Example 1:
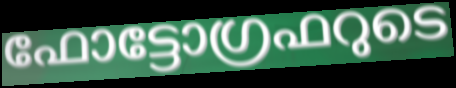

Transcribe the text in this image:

ഫോട്ടോഗ്രഫറുടെ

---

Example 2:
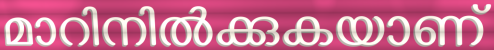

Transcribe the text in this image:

മാറിനിൽക്കുകയാണ്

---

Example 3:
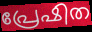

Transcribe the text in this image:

പ്രേഷിത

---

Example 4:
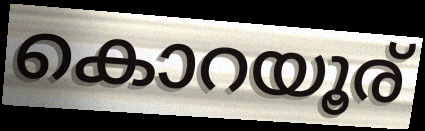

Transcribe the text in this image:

കൊറയൂര്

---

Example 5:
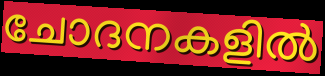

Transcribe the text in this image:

ചോദനകളിൽ